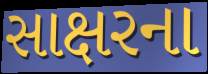
સાક્ષરના